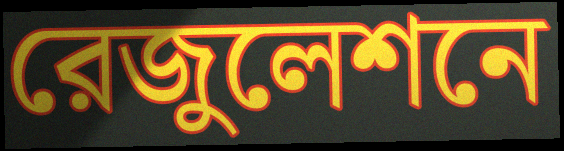
রেজুলেশনে